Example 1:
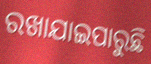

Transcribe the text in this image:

ରଖାଯାଇପାରୁଛି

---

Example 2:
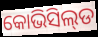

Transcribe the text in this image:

କୋଭିସିଲ୍‌ଡ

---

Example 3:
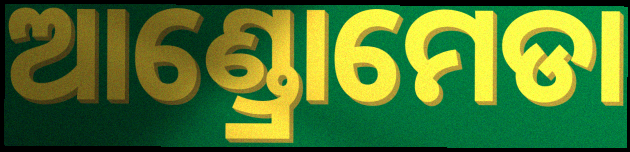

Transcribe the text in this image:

ଆଣ୍ଡ୍ରୋମେଡା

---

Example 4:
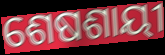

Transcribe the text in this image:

ଶେଷଶାୟୀ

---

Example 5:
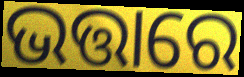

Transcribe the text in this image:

ଭତ୍ତାରେ